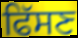
ਫਿੱਸਣ